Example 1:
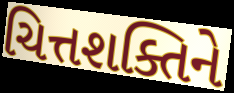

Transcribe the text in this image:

ચિત્તશક્તિને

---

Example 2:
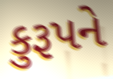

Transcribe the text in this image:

કુરૂપને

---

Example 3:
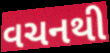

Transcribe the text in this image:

વચનથી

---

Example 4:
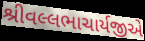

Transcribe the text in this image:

શ્રીવલ્લભાચાર્યજીએ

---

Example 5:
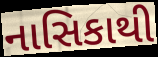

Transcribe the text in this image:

નાસિકાથી